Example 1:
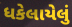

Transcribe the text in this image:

ધકેલાયેલું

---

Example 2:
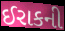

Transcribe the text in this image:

ઈરાકની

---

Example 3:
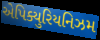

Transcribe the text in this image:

એપિક્યુરિયનિઝમ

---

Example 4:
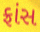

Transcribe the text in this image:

ફ્રાંસ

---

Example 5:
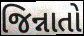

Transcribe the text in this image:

જિન્નાતો